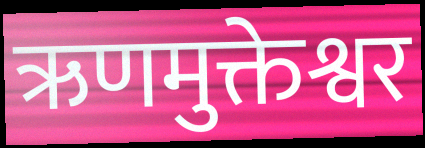
ऋणमुक्तेश्वर